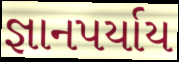
જ્ઞાનપર્યાય